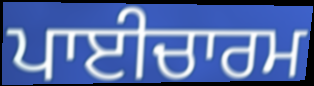
ਪਾਈਚਾਰਮ